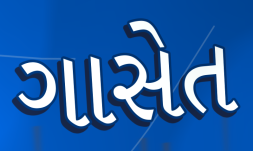
ગાસેત